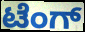
ಟೆಂಗ್